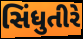
સિંધુતીરે